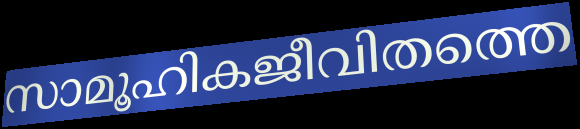
സാമൂഹികജീവിതത്തെ